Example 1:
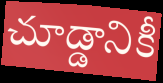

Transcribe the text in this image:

చూడ్డానికీ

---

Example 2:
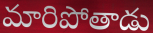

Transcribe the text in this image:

మారిపోతాడు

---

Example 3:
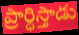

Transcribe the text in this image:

ప్రార్ధిస్తాడు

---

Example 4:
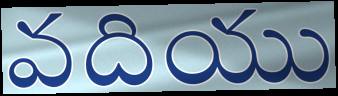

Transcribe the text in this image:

వదియు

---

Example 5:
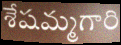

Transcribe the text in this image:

శేషమ్మగారి